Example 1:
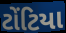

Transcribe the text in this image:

ટોંટિયા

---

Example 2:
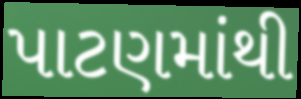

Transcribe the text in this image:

પાટણમાંથી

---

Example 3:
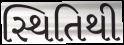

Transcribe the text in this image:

સ્થિતિથી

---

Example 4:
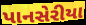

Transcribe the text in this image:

પાનસેરીયા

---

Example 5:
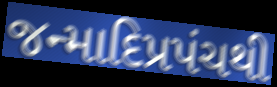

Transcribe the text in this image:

જન્માદિપ્રપંચથી